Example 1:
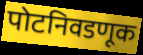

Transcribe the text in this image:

पोटनिवडणूक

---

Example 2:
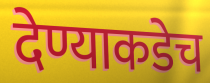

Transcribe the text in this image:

देण्याकडेच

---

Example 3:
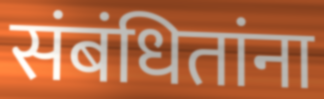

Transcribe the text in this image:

संबंधितांना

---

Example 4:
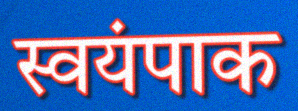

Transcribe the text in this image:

स्वयंपाक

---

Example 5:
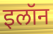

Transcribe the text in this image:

इलॉन